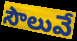
సౌలువే